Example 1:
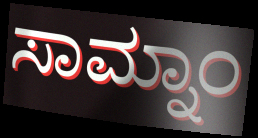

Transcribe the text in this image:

ಸಾಮ್ನಾಂ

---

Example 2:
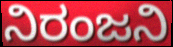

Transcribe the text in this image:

ನಿರಂಜನಿ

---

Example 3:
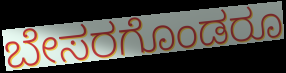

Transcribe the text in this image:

ಬೇಸರಗೊಂಡರೂ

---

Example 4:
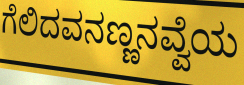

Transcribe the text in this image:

ಗೆಲಿದವನಣ್ಣನವ್ವೆಯ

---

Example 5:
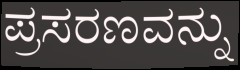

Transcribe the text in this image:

ಪ್ರಸರಣವನ್ನು